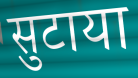
सुटाया